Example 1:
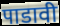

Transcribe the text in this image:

पाडावी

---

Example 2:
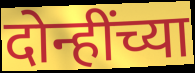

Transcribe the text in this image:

दोन्हींच्या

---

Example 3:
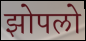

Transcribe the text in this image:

झोपलो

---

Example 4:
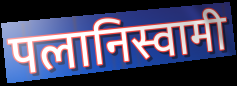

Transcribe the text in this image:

पलानिस्वामी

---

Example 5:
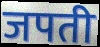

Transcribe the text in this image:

जपती